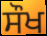
ਸੌਖ